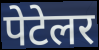
पेटेलर